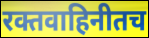
रक्तवाहिनीतच